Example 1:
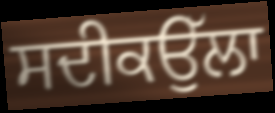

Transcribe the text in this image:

ਸਦੀਕਉੱਲਾ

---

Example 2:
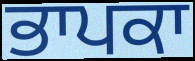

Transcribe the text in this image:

ਭਾਪਕਾ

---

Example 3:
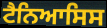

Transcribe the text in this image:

ਟੈਨਿਆਸਿਸ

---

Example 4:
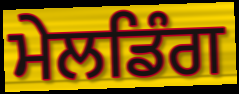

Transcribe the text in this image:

ਮੇਲਡਿੰਗ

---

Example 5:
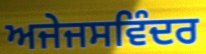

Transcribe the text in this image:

ਅਜੇਜਸਵਿੰਦਰ